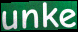
unke